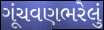
ગૂંચવણભરેલું